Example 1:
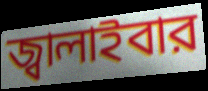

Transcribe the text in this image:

জ্বালাইবার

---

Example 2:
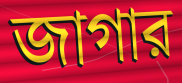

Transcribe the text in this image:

জাগার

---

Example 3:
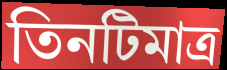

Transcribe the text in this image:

তিনটিমাত্র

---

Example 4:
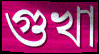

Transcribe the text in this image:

গুখা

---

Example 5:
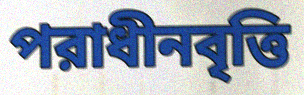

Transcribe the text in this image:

পরাধীনবৃত্তি